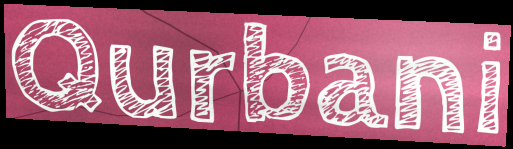
Qurbani